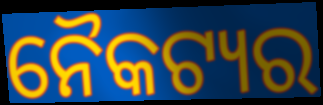
ନୈକଟ୍ୟର